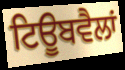
ਟਿਊਬਵੈਲਾਂ